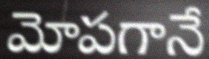
మోపగానే